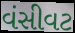
વંસીવટ